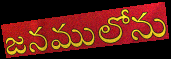
జనములోను